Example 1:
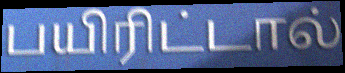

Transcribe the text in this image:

பயிரிட்டால்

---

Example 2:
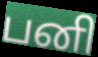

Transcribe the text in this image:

பனி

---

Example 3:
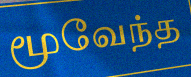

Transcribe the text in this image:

மூவேந்த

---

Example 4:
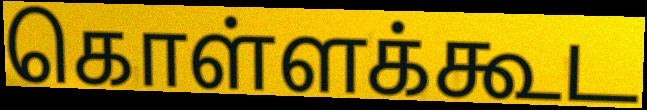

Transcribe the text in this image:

கொள்ளக்கூட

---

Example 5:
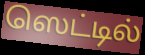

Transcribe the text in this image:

ஸெட்டில்